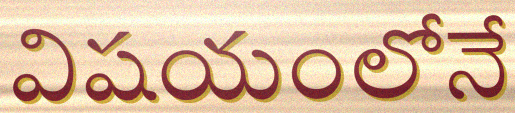
విషయంలోనే